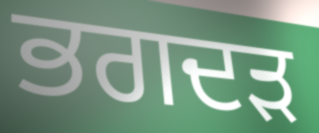
ਭਗਦੜ